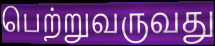
பெற்றுவருவது